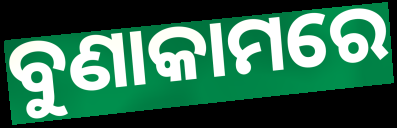
ବୁଣାକାମରେ